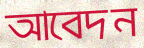
আবেদন